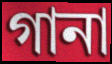
গানা